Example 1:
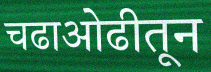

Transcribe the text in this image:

चढाओढीतून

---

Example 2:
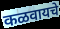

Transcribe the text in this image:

कळवायचे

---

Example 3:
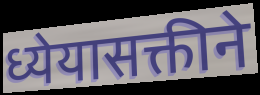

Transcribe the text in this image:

ध्येयासक्तीने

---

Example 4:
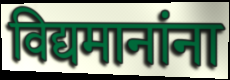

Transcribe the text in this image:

विद्यमानांना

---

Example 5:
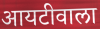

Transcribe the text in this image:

आयटीवाला